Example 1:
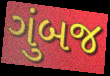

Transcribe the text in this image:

ગુંબજ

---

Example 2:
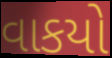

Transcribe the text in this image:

વાકયો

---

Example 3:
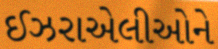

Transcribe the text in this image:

ઈઝરાએલીઓને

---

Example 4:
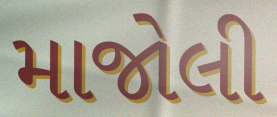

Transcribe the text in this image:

માજોલી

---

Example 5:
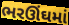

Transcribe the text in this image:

ભરઊંઘમાં